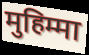
मुहिम्मा